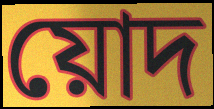
য়োদ